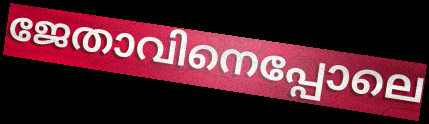
ജേതാവിനെപ്പോലെ